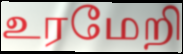
உரமேறி